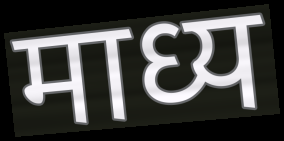
माध्य